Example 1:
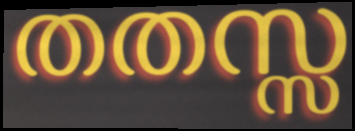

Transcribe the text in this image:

തതസ്സ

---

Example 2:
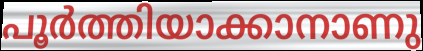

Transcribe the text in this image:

പൂർത്തിയാക്കാനാണു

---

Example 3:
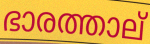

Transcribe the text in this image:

ഭാരത്താല്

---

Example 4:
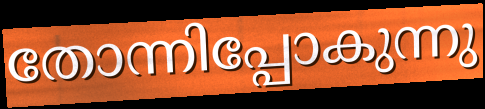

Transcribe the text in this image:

തോന്നിപ്പോകുന്നു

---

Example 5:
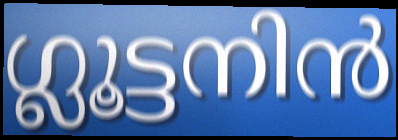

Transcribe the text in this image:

ഗ്ലൂട്ടനിൻ